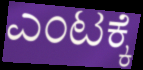
ಎಂಟಕ್ಕೆ